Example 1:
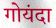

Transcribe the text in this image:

गोयंदा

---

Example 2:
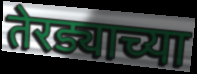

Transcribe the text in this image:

तेरड्याच्या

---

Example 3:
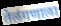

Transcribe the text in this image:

तेलंगणाला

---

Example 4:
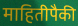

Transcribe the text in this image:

माहितीपैकी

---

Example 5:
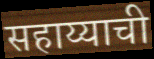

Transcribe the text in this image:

सहाय्याची